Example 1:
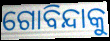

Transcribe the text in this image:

ଗୋବିନ୍ଦାକୁ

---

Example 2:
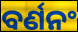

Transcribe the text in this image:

ବର୍ଣନଂ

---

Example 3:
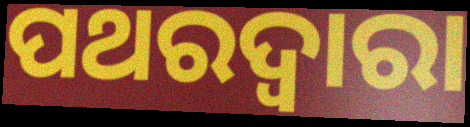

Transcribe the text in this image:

ପଥରଦ୍ୱାରା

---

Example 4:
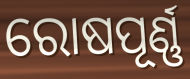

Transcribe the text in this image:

ରୋଷପୂର୍ଣ୍ଣ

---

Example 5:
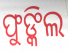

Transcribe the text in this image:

ଫୁଙ୍କିଲ